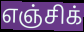
எஞ்சிக்